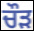
ਚੌੜ